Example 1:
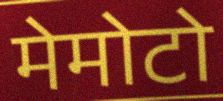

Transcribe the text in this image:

मेमोटो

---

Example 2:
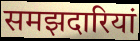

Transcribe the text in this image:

समझदारियां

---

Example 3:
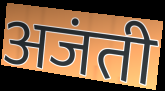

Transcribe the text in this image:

अजंती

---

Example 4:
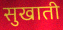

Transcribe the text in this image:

सुखाती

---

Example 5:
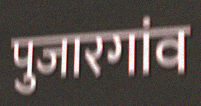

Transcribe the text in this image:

पुजारगांव